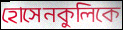
হোসেনকুলিকে